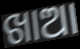
ଖାଆ